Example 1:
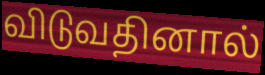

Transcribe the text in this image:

விடுவதினால்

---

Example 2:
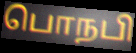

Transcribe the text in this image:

பொநபி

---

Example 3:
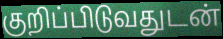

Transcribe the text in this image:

குறிப்பிடுவதுடன்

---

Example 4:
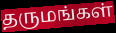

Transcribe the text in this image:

தருமங்கள்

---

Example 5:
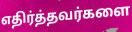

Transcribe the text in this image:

எதிர்த்தவர்களை